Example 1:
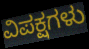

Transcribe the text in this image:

ವಿಪಕ್ಷಗಳು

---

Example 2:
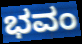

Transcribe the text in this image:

ಭವಂ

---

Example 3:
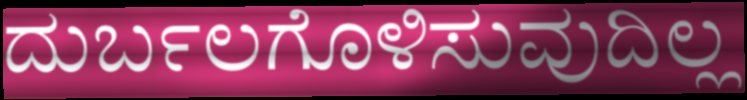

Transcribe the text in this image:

ದುರ್ಬಲಗೊಳಿಸುವುದಿಲ್ಲ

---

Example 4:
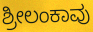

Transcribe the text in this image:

ಶ್ರೀಲಂಕಾವು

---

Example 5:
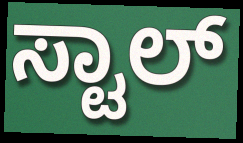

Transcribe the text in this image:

ಸ್ಟಾಲ್